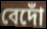
বেদোঁ